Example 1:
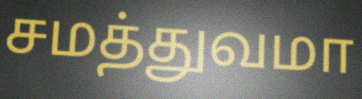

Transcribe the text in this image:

சமத்துவமா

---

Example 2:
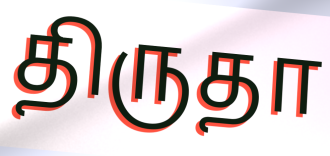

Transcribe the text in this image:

திருதா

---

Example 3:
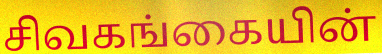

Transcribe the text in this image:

சிவகங்கையின்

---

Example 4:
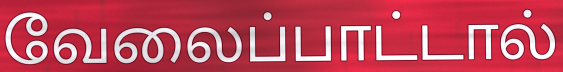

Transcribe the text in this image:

வேலைப்பாட்டால்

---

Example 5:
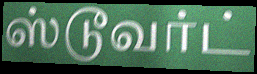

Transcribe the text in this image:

ஸ்டூவர்ட்